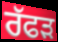
ਰੱਫੜ